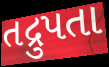
તદ્રુપતા